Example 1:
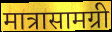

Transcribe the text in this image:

मात्रासामग्री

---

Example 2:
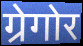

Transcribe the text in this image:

ग्रेगोर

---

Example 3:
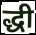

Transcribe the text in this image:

द्धी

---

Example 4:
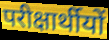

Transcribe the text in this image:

परीक्षार्थीयों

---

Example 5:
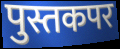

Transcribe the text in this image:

पुस्तकपर